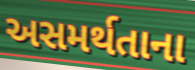
અસમર્થતાના